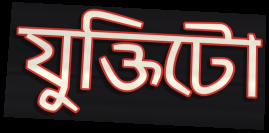
যুক্তিটো